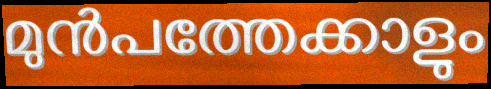
മുൻപത്തേക്കാളും